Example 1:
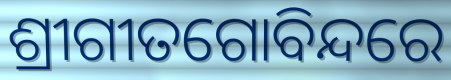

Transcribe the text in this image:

ଶ୍ରୀଗୀତଗୋବିନ୍ଦରେ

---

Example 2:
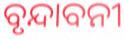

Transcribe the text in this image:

ବୃନ୍ଦାବନୀ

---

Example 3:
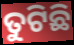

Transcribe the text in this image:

ତୁଟିଛି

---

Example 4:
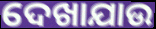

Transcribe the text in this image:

ଦେଖାଯାଉ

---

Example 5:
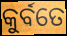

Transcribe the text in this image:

କୁର୍ବତେ